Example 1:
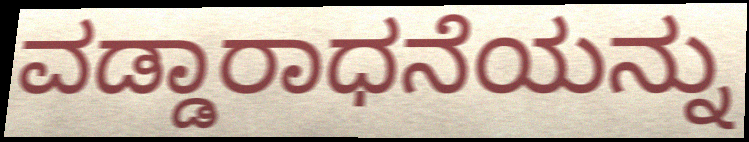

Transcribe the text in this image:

ವಡ್ಡಾರಾಧನೆಯನ್ನು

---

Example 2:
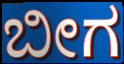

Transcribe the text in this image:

ಬೀಗ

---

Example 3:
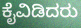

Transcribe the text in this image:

ಕೈವಿಡಿದರು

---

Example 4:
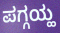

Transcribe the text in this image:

ಪಗ್ಗಯ್ಹ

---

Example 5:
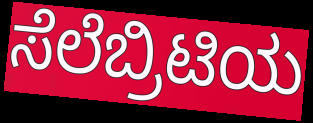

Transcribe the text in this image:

ಸೆಲೆಬ್ರಿಟಿಯ